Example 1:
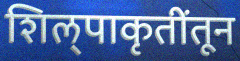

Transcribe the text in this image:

शिल्पाकृतींतून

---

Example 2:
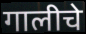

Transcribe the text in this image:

गालीचे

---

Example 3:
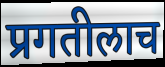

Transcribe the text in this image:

प्रगतीलाच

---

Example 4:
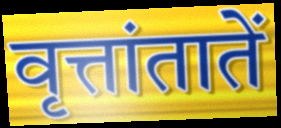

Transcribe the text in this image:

वृत्तांतातें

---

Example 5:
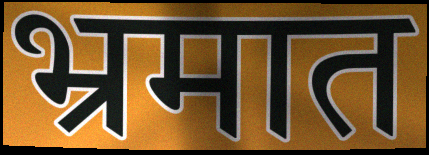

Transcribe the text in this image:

भ्रमात